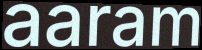
aaram